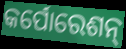
କର୍ପୋରେଶନ୍